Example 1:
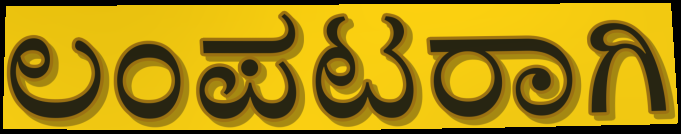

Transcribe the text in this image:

ಲಂಪಟರಾಗಿ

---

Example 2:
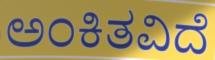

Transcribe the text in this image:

ಅಂಕಿತವಿದೆ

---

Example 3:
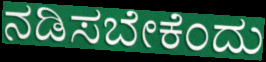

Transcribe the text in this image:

ನಡಿಸಬೇಕೆಂದು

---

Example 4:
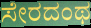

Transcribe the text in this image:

ಸೇರದಂಥ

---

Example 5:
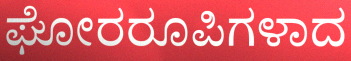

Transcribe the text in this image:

ಘೋರರೂಪಿಗಳಾದ